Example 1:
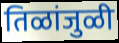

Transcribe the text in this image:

तिळांजुळी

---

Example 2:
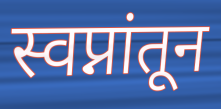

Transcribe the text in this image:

स्वप्नांतून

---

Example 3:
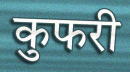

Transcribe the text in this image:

कुफरी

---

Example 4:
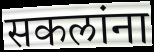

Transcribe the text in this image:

सकलांना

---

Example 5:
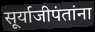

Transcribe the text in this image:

सूर्याजीपंतांना